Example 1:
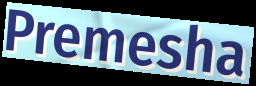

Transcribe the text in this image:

Premesha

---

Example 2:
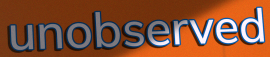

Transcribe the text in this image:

unobserved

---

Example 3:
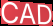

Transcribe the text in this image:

CAD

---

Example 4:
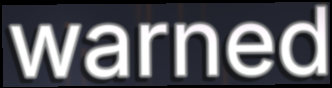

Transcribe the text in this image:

warned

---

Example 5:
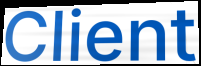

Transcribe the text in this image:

Client